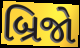
બ્રિજો